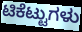
ಟಿಕೆಟ್ಟುಗಳು